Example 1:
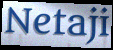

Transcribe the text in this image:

Netaji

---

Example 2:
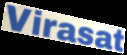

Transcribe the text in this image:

Virasat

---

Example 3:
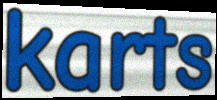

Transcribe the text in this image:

karts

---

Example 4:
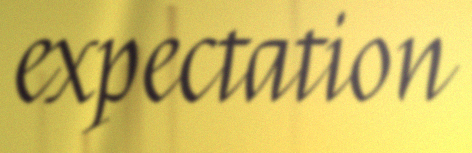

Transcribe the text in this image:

expectation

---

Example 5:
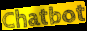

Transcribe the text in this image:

Chatbot